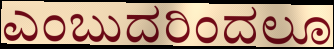
ಎಂಬುದರಿಂದಲೂ